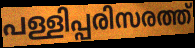
പള്ളിപ്പരിസരത്ത്